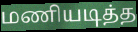
மணியடித்த